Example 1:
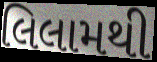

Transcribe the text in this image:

લિલામથી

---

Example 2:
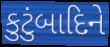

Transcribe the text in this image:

કુટુંબાદિને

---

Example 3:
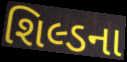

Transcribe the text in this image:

શિલ્ડના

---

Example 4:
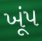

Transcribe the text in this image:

ખૂંપ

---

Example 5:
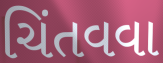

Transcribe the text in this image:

ચિંતવવા